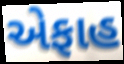
એફાહ